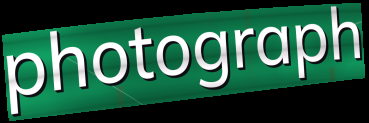
photograph